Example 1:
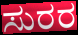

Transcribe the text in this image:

ಸುರರ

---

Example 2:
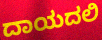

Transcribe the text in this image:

ದಾಯದಲಿ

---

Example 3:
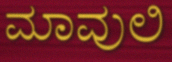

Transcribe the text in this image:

ಮಾವುಲಿ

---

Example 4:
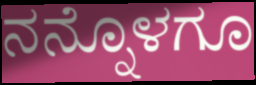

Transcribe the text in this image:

ನನ್ನೊಳಗೂ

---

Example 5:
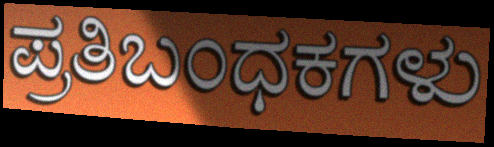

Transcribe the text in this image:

ಪ್ರತಿಬಂಧಕಗಳು